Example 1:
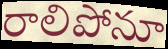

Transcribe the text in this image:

రాలిపోనూ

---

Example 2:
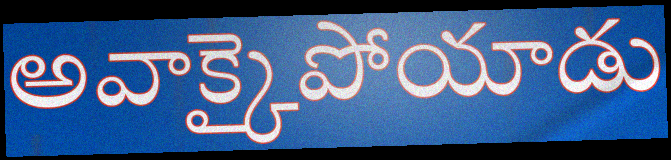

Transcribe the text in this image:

అవాక్కైపోయాడు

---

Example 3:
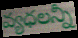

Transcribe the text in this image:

వ్యధలన్నీ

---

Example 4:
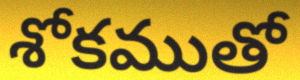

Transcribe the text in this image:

శోకముతో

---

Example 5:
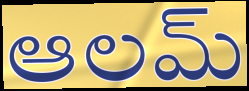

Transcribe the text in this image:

ఆలమ్